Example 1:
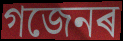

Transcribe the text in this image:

গজেনৰ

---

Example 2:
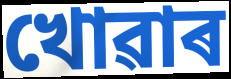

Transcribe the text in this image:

খোৱাৰ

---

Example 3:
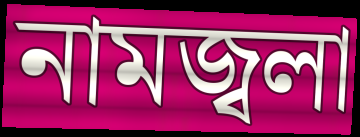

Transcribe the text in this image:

নামজ্বলা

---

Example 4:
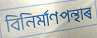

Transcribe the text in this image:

বিনিৰ্মাণপন্থাৰ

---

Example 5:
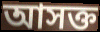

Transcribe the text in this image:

আসক্ত